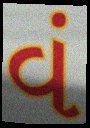
વં